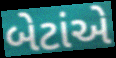
બેટાંએ